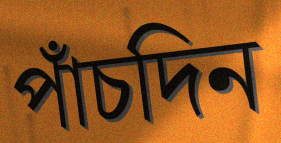
পাঁচদিন